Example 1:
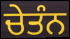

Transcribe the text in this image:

ਚੇਤੰਨ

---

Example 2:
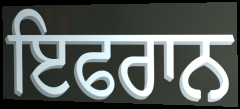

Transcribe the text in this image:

ਇਫਰਾਨ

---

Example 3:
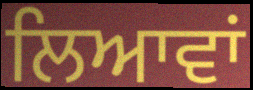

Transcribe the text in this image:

ਲਿਆਵਾਂ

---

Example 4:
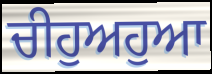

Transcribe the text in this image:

ਚੀਹੁਅਹੁਆ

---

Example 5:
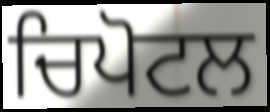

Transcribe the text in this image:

ਚਿਪੋਟਲ